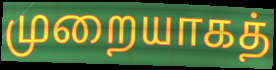
முறையாகத்